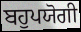
ਬਹੁਪਯੋਗੀ